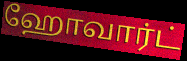
ஹோவார்ட்